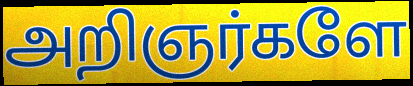
அறிஞர்களே